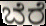
ಬೆರೆ